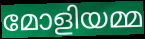
മോളിയമ്മ